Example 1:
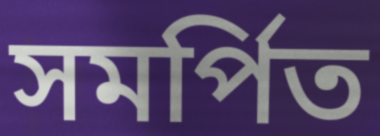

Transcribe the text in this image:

সমৰ্পিত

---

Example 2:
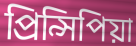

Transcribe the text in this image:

প্ৰিন্সিপিয়া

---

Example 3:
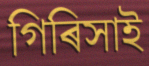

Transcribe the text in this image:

গিৰিসাই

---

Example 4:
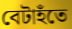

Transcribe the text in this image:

বেটাহঁতে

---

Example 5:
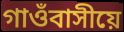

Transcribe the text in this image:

গাওঁবাসীয়ে